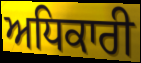
ਅਧਿਕਾਰੀ